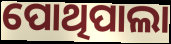
ପୋଥିପାଲା